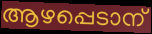
ആഴപ്പെടാന്